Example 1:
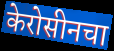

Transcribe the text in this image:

केरोसीनचा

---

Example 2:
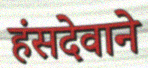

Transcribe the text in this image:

हंसदेवाने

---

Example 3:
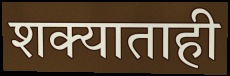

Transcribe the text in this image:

शक्याताही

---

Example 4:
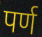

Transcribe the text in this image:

पर्ण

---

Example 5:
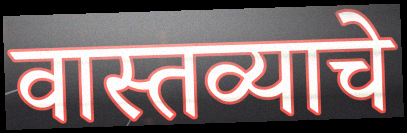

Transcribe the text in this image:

वास्तव्याचे